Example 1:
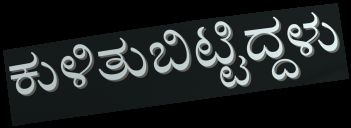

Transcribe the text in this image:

ಕುಳಿತುಬಿಟ್ಟಿದ್ದಳು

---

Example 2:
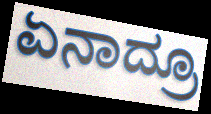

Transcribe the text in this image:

ಏನಾದ್ರೂ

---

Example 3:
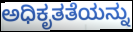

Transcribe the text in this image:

ಅಧಿಕೃತತೆಯನ್ನು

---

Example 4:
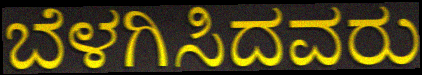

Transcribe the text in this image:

ಬೆಳಗಿಸಿದವರು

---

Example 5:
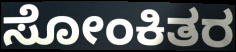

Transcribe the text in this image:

ಸೋಂಕಿತರ